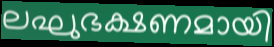
ലഘുഭക്ഷണമായി